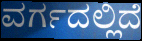
ವರ್ಗದಲ್ಲಿದೆ